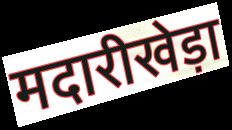
मदारीखेड़ा